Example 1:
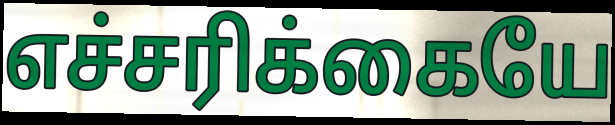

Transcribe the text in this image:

எச்சரிக்கையே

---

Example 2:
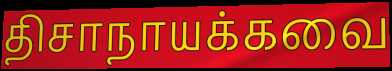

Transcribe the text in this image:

திசாநாயக்கவை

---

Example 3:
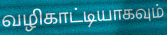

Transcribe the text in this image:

வழிகாட்டியாகவும்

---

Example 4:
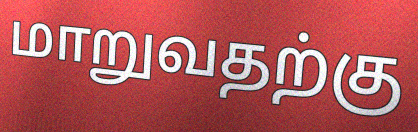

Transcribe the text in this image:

மாறுவதற்கு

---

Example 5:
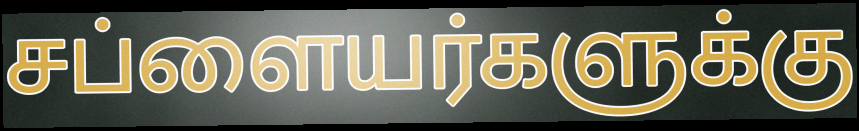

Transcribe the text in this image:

சப்ளையர்களுக்கு